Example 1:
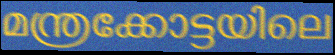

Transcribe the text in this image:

മന്ത്രക്കോട്ടയിലെ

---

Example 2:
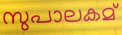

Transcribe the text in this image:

സുപാലകമ്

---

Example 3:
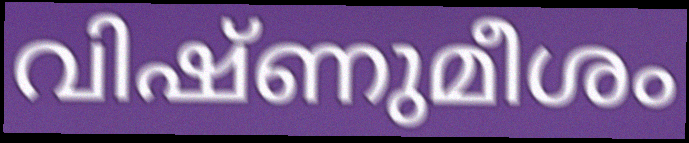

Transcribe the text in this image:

വിഷ്ണുമീശം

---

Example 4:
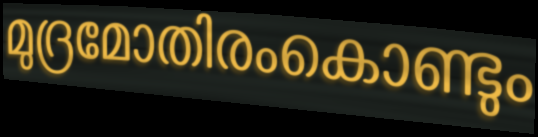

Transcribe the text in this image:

മുദ്രമോതിരംകൊണ്ടും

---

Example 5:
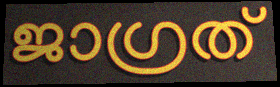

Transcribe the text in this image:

ജാഗ്രത്